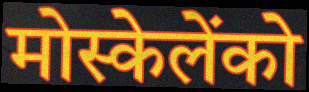
मोस्केलेंको